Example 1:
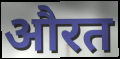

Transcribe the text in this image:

औरत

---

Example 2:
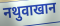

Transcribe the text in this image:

नथुवाखान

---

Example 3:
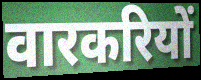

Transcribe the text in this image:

वारकरियों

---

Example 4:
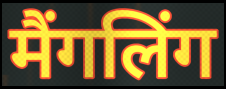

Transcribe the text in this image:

मैंगलिंग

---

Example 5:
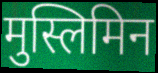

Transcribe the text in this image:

मुस्लिमिन